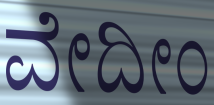
ವೇದೀಂ